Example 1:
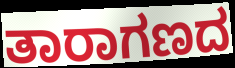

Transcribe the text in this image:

ತಾರಾಗಣದ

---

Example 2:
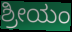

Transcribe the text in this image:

ಶ್ರೀಯಂ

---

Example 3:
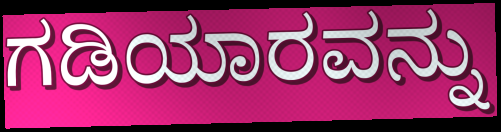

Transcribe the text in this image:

ಗಡಿಯಾರವನ್ನು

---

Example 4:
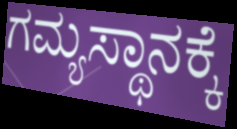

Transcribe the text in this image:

ಗಮ್ಯಸ್ಥಾನಕ್ಕೆ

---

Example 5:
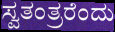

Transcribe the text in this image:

ಸ್ವತಂತ್ರರೆಂದು